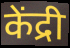
केंद्री